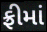
ફ્રીમાં